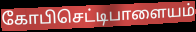
கோபிசெட்டிபாளையம்